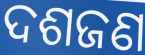
ଦଶଜଣ